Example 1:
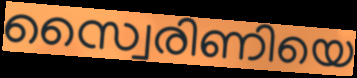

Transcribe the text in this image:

സ്വൈരിണിയെ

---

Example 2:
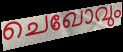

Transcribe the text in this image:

ചെഖോവും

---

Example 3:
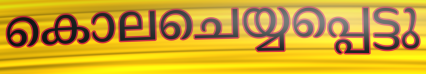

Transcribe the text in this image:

കൊലചെയ്യപ്പെട്ടു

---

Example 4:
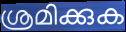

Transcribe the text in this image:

ശ്രമിക്കുക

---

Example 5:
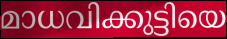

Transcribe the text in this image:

മാധവിക്കുട്ടിയെ